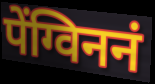
पेंग्विननं